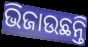
ଭିଜାଉଛନ୍ତି